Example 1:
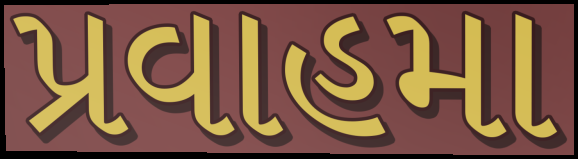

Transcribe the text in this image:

પ્રવાહમા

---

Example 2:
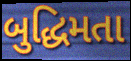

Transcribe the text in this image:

બુદ્ધિમતા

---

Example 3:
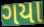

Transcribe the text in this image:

ગયા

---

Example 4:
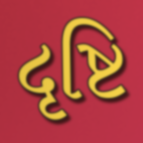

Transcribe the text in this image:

દૃષ્ટિ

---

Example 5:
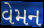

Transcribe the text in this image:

વેમન